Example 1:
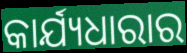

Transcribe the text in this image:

କାର୍ଯ୍ୟଧାରାର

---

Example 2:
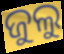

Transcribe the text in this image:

ଜୁଲୁ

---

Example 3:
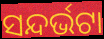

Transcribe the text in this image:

ସନ୍ଦର୍ଭଟା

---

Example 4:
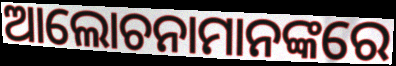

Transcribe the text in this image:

ଆଲୋଚନାମାନଙ୍କରେ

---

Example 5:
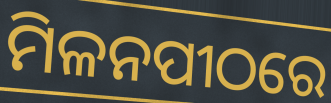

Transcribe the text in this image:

ମିଳନପୀଠରେ